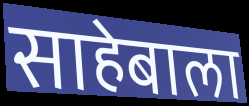
साहेबाला